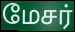
மேசர்